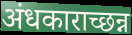
अंधकाराच्छन्न